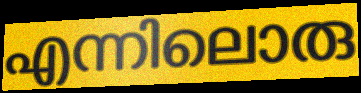
എന്നിലൊരു